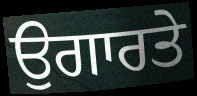
ਉਗਾਰਤੇ